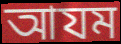
আযম